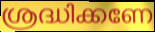
ശ്രദ്ധിക്കണേ